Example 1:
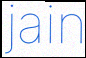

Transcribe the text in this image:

jain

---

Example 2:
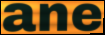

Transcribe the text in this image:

ane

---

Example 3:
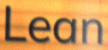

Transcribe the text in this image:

Lean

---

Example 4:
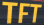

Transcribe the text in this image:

TFT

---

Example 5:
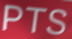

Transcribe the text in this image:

PTS